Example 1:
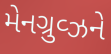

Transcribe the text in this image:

મેનગ્રુવ્ઝને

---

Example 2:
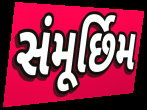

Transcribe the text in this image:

સંમૂર્છિમ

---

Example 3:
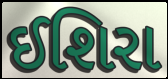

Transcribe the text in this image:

ઈશિરા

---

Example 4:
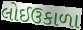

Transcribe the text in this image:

લોઈઉકાળા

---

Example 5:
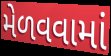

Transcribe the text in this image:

મેળવવામાં